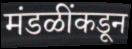
मंडळींकडून